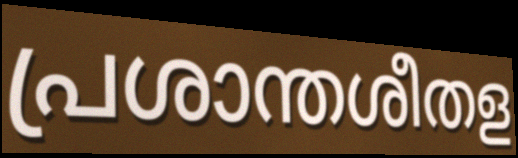
പ്രശാന്തശീതള